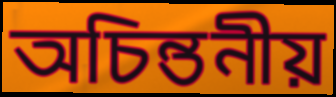
অচিন্তনীয়